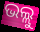
ଭଲ୍ଲୁ